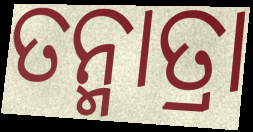
ତନ୍ମାତ୍ରା